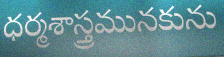
ధర్మశాస్త్రమునకును